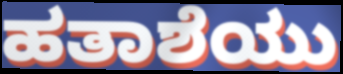
ಹತಾಶೆಯು